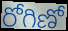
రోగిణో